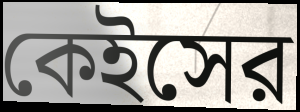
কেইসের